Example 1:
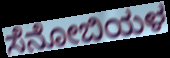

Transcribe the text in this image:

ಸೆನೋಬಿಯಳ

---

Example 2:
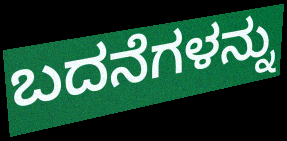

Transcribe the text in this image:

ಬದನೆಗಳನ್ನು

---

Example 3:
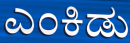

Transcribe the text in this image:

ಎಂಕಿಡು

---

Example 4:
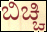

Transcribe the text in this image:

ಬಿಚ್ಚಿ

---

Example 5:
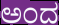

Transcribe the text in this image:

ಅಂದ